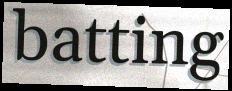
batting